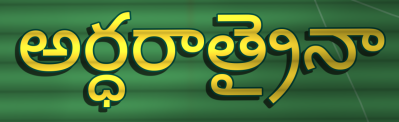
అర్ధరాత్రైనా